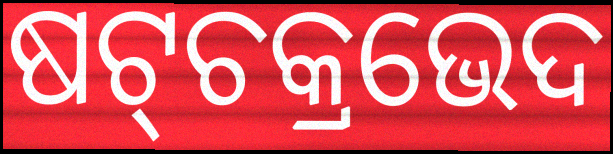
ଷଟ୍‌ଚକ୍ରଭେଦ